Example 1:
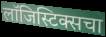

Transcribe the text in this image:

लॉजिस्टिक्सचा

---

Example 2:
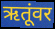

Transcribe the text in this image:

ऋतूंवर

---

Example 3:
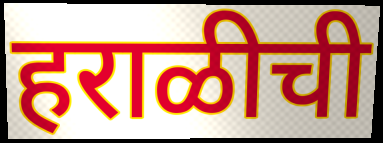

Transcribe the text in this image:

हराळीची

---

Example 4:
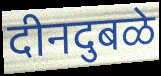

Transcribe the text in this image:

दीनदुबळे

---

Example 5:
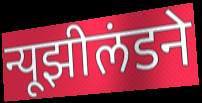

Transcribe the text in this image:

न्यूझीलंडने